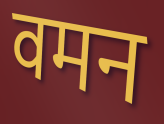
वमन